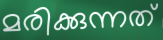
മരിക്കുന്നത്